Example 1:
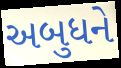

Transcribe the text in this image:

અબુધને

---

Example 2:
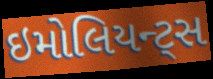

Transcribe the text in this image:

ઇમોલિયન્ટ્સ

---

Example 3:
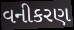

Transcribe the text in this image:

વનીકરણ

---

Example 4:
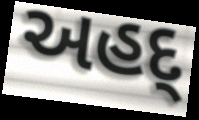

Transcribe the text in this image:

અહદ્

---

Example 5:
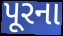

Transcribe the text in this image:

પૂરના